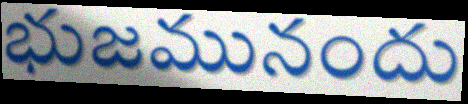
భుజమునందు